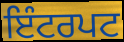
ਇੰਟਰਪਟ